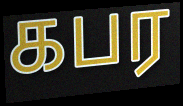
கபர